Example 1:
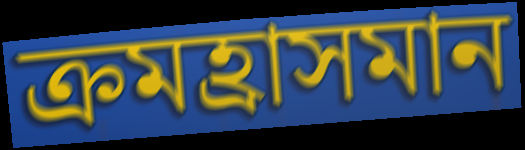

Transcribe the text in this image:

ক্রমহ্রাসমান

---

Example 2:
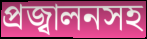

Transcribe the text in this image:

প্রজ্বালনসহ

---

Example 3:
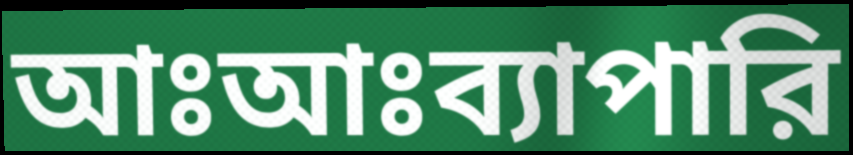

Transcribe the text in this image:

আঃআঃব্যাপারি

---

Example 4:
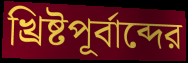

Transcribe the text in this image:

খ্রিষ্টপূর্বাব্দের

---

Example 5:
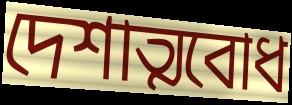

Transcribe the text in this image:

দেশাত্মবোধ